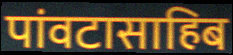
पांवटासाहिब